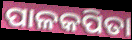
ପାଳକପିତା